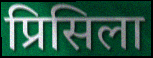
प्रिसिला